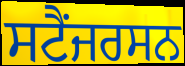
ਸਟੈਂਜਰਸਨ